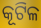
କୂଟିଳ